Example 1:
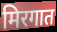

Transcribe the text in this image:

मिरगात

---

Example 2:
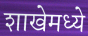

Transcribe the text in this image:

शाखेमध्ये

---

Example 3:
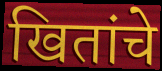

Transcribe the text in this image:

खितांचे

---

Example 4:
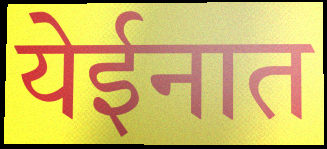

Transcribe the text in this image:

येईनात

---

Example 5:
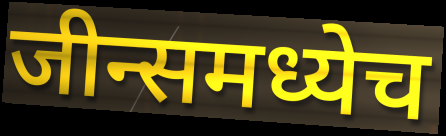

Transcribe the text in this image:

जीन्समध्येच